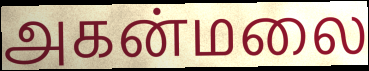
அகன்மலை